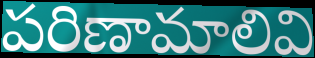
పరిణామాలివి